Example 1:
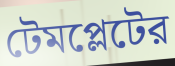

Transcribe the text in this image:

টেমপ্লেটের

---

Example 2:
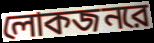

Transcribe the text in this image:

লোকজনরে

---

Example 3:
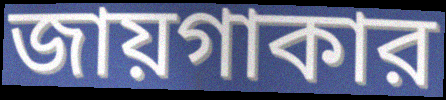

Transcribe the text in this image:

জায়গাকার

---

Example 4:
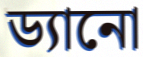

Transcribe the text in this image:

ড্যানো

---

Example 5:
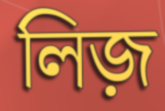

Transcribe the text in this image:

লিজ়